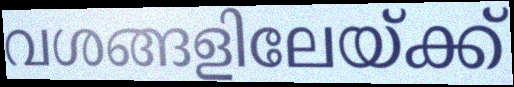
വശങ്ങളിലേയ്ക്ക്